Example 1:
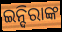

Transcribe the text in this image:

ଇନ୍ଦିରାଙ୍କ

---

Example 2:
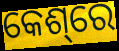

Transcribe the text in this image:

କେଶ୍‌ରେ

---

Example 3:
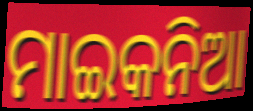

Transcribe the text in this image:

ମାଇକନିଆ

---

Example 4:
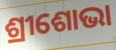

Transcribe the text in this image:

ଶ୍ରୀଶୋଭା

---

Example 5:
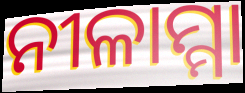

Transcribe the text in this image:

ନୀଳାମ୍ମା